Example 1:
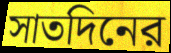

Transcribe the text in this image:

সাতদিনের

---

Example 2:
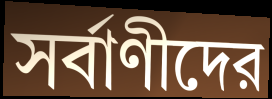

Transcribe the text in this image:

সর্বাণীদের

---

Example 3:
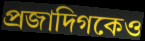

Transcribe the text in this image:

প্রজাদিগকেও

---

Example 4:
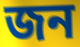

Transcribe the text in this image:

জন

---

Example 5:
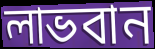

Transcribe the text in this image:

লাভবান